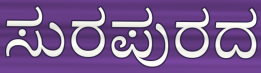
ಸುರಪುರದ